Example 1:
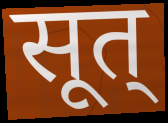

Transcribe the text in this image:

सूत्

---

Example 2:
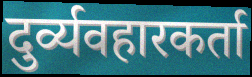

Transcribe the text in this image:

दुर्व्यवहारकर्ता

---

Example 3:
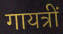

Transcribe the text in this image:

गायत्रीं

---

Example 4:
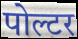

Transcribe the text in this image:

पोल्टर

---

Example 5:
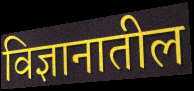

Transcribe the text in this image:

विज्ञानातील